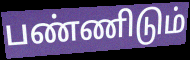
பண்ணிடும்